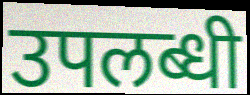
उपलब्धी